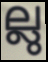
ല്ലു